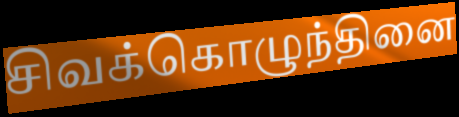
சிவக்கொழுந்தினை